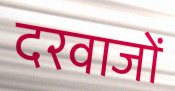
दरवाजों